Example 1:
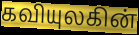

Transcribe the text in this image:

கவியுலகின்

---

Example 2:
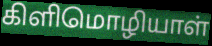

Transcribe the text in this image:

கிளிமொழியாள்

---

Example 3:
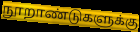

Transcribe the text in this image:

நூறாண்டுகளுக்கு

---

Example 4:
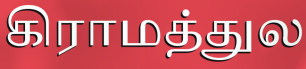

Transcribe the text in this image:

கிராமத்துல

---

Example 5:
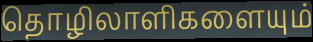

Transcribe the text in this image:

தொழிலாளிகளையும்